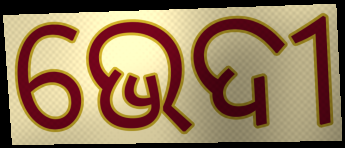
ଭେଦୀ